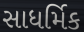
સાધર્મિક